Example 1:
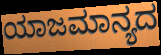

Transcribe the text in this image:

ಯಾಜಮಾನ್ಯದ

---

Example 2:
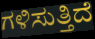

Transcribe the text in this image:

ಗಳಿಸುತ್ತಿದೆ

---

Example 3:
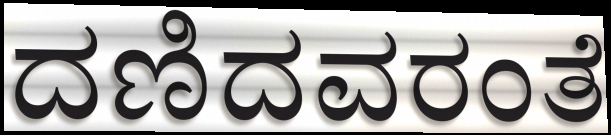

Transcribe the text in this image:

ದಣಿದವರಂತೆ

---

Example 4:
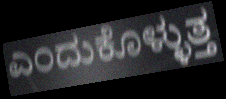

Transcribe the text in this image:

ಎಂದುಕೊಳ್ಳುತ್ತ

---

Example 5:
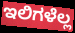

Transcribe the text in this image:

ಇಲಿಗಳೆಲ್ಲ